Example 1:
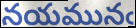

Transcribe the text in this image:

నయమునఁ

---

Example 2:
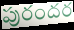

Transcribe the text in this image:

పురందర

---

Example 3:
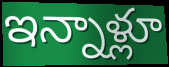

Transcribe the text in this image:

ఇన్నాళ్లూ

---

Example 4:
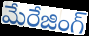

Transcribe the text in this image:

మేరేజింగ్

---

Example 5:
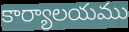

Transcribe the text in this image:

కార్యాలయము